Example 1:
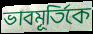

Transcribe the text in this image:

ভাবমূর্তিকে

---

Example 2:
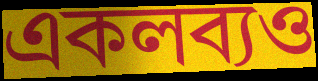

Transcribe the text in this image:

একলব্যও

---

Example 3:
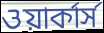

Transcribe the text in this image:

ওয়ার্কার্স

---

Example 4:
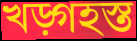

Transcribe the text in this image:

খড়্গহস্ত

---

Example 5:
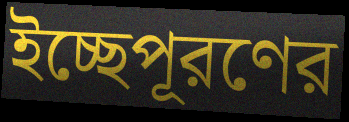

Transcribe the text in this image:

ইচ্ছেপূরণের